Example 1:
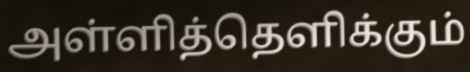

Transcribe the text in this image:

அள்ளித்தெளிக்கும்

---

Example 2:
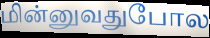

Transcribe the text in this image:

மின்னுவதுபோல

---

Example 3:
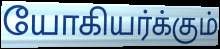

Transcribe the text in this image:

யோகியர்க்கும்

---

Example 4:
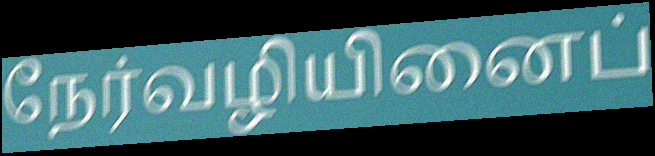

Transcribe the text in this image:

நேர்வழியினைப்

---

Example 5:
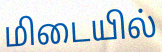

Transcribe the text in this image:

மிடையில்